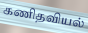
கணிதவியல்